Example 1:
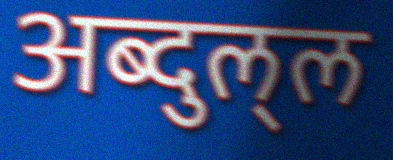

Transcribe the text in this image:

अब्दुल्ल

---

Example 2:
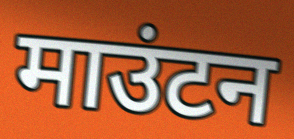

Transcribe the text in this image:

माउंटन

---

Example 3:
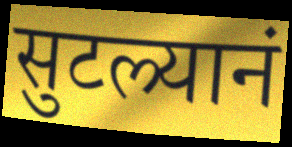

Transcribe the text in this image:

सुटल्यानं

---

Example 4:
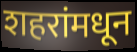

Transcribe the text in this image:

शहरांमधून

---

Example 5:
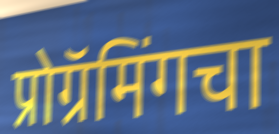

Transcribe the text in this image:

प्रोग्रॅमिंगचा